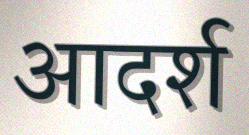
आदर्श